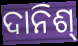
ଦାନିଶ୍